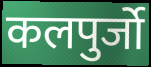
कलपुर्जो